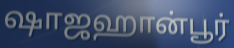
ஷாஜஹான்பூர்